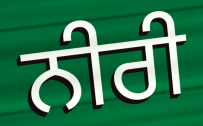
ਨੀਰੀ